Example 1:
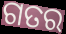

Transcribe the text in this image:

ଗତର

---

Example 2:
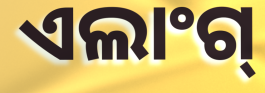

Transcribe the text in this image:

ଏଲାଂଗ୍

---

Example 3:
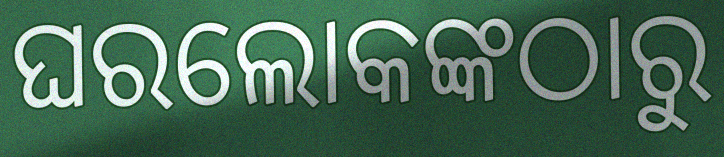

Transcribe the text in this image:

ଘରଲୋକଙ୍କଠାରୁ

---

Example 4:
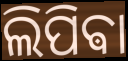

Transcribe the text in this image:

ଲିପିଵା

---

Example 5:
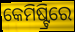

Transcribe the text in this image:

କେମିଷ୍ଟ୍ରିରେ